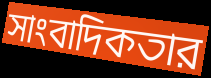
সাংবাদিকতার